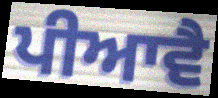
ਪੀਆਵੈ